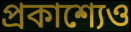
প্রকাশ্যেও